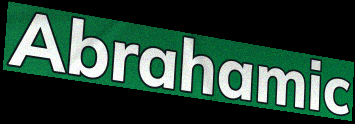
Abrahamic